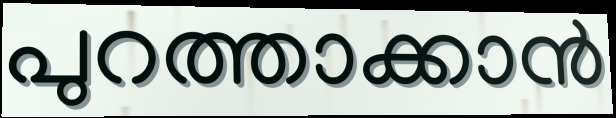
പുറത്താക്കാൻ